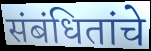
संबंधितांचे